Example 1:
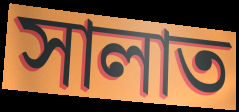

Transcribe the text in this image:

সালাত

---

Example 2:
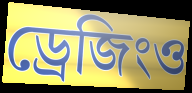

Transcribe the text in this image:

ড্রেজিংও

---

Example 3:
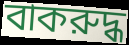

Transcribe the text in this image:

বাকরুদ্ধ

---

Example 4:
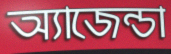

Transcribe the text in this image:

অ্যাজেন্ডা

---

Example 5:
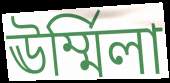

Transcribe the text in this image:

ঊর্ম্মিলা